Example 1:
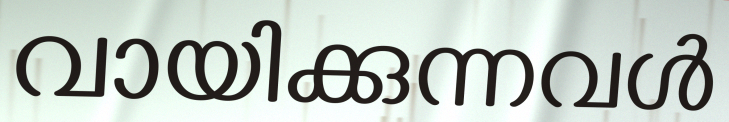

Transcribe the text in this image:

വായിക്കുന്നവൾ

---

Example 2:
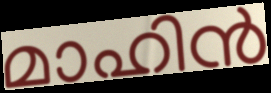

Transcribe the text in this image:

മാഹിൻ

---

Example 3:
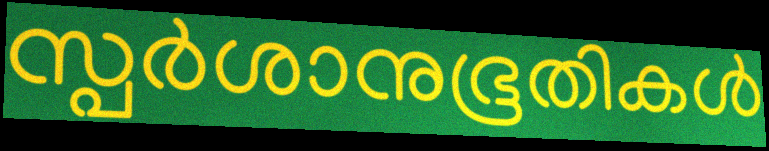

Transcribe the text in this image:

സ്പർശാനുഭൂതികൾ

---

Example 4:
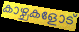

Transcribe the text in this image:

കാഴ്ചകളോട്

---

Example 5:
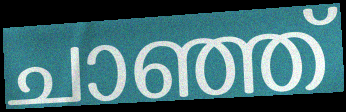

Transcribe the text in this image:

ചാഞ്ഞ്